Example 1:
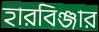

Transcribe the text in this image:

হারবিঞ্জার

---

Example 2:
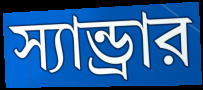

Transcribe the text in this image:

স্যান্ড্রার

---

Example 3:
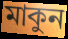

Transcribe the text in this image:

মাকুন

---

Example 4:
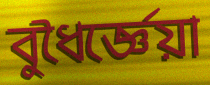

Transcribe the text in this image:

বুধৈর্জ্ঞেয়া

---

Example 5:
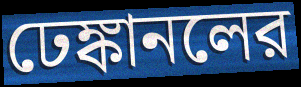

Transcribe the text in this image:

ঢেঙ্কানলের